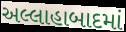
અલ્લાહાબાદમાં